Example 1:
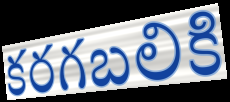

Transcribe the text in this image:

కరగబలికి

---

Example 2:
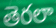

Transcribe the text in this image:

తెరలా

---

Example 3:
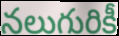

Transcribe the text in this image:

నలుగురికీ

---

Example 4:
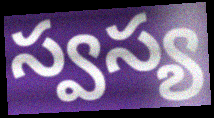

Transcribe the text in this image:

స్వస్య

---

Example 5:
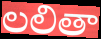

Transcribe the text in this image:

లలితా